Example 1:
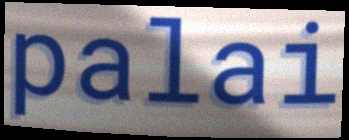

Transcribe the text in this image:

palai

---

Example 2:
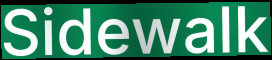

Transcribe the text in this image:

Sidewalk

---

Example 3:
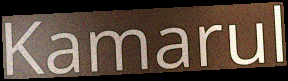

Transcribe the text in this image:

Kamarul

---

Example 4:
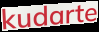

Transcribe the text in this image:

kudarte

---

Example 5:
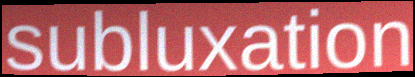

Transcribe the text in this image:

subluxation